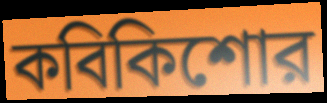
কবিকিশোর